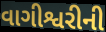
વાગીશ્વરીની